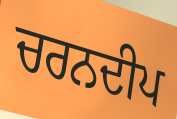
ਚਰਨਦੀਪ